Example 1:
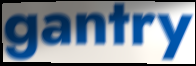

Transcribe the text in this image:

gantry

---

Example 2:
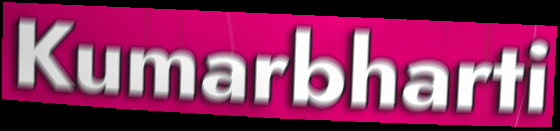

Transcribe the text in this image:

Kumarbharti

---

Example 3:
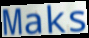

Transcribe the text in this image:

Maks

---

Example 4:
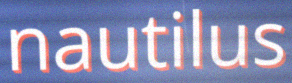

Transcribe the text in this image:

nautilus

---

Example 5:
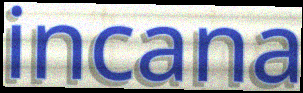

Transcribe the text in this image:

incana